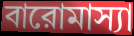
বারোমাস্যা